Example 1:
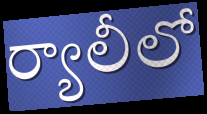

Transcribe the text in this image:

ర్యాలీలో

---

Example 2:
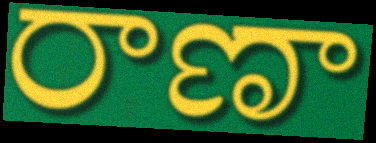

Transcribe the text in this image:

రాణా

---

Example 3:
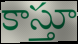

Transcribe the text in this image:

కాస్తూ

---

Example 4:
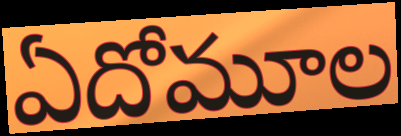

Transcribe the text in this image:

ఏదోమూల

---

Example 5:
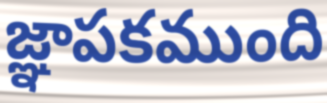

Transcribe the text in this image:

జ్ఞాపకముంది